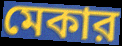
মেকার